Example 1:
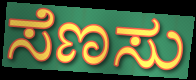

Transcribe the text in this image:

ಸೆಣಸು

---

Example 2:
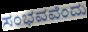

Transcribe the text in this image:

ಸಂಭವವೆಂದು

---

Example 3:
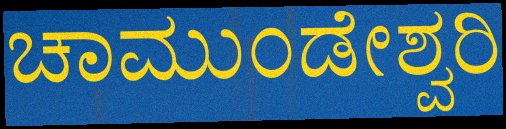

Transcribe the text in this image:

ಚಾಮುಂಡೇಶ್ವರಿ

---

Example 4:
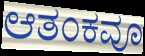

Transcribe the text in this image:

ಆತಂಕವೂ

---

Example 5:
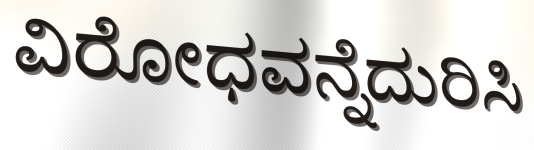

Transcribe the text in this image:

ವಿರೋಧವನ್ನೆದುರಿಸಿ